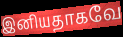
இனியதாகவே